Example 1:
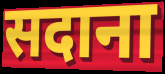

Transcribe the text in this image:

सदाना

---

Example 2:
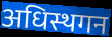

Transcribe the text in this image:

अधिस्थगन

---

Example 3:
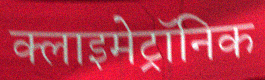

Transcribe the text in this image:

क्लाइमेट्रॉनिक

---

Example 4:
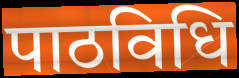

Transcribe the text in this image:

पाठविधि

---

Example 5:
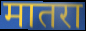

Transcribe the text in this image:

मातरा